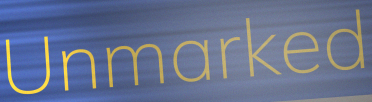
Unmarked